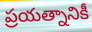
ప్రయత్నానికీ